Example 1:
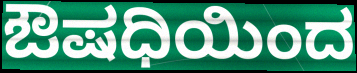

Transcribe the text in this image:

ಔಷಧಿಯಿಂದ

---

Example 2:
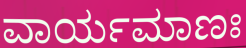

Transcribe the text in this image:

ವಾರ್ಯಮಾಣಃ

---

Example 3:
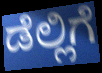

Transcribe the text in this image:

ಡೆಲ್ಲಿಗೆ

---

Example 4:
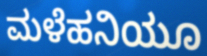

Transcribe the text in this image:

ಮಳೆಹನಿಯೂ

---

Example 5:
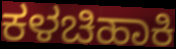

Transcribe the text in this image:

ಕಳಚಿಹಾಕಿ